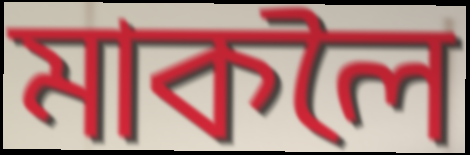
মাকলৈ